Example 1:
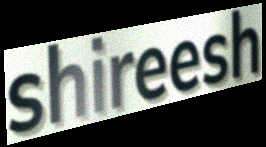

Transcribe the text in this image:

shireesh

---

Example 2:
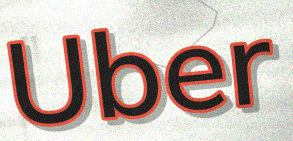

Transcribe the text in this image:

Uber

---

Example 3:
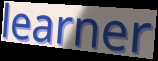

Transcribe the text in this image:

learner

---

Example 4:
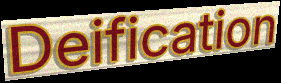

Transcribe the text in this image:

Deification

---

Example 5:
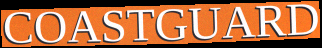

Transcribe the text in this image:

COASTGUARD